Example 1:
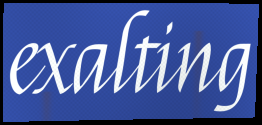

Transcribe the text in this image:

exalting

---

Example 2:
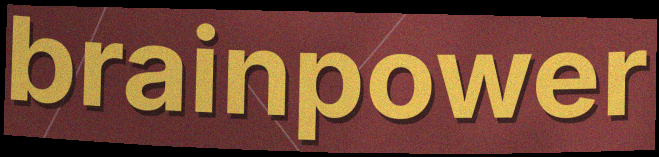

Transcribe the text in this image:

brainpower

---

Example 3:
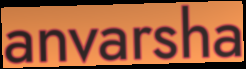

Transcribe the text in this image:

anvarsha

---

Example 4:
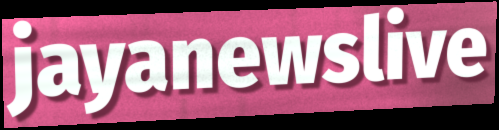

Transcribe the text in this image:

jayanewslive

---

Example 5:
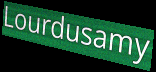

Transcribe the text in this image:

Lourdusamy